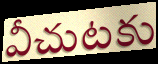
వీచుటకు